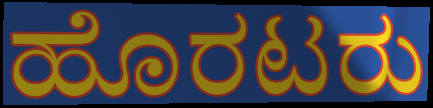
ಹೊರಟರು